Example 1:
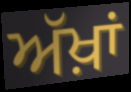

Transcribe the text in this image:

ਅੱਖ਼ਾਂ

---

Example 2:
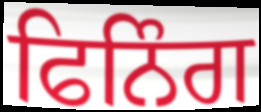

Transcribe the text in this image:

ਫਿਨਿੰਗ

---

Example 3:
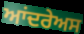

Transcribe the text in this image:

ਆਂਦਰੇਅਸ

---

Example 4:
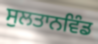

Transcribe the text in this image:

ਸੁਲਤਾਨਵਿੰਡ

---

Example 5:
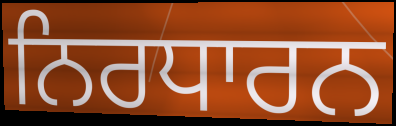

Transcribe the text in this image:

ਨਿਰਧਾਰਨ